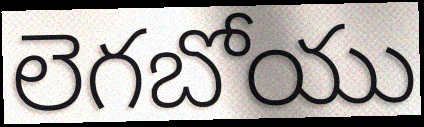
లెగబోయు